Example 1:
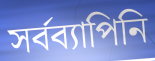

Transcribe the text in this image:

সর্বব্যাপিনি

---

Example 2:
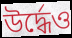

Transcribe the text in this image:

উর্দ্ধেও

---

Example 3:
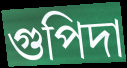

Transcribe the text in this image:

গুপিদা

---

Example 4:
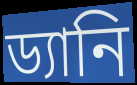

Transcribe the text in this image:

ড্যানি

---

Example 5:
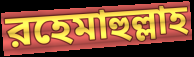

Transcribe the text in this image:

রহেমাহুল্লাহ